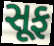
સૂફ